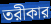
তরীকার